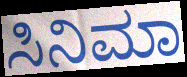
ಸಿನಿಮಾ